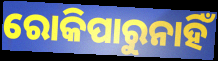
ରୋକିପାରୁନାହିଁ